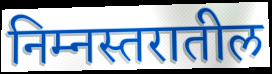
निम्नस्तरातील